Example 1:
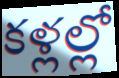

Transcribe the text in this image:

కళ్లల్లో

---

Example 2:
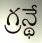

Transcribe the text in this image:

గ్రన్థే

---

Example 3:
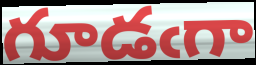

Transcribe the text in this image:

గూడఁగా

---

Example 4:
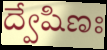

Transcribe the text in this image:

ద్వేషిణః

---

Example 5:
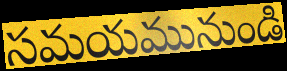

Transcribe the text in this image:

సమయమునుండి